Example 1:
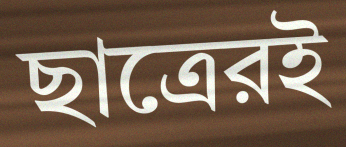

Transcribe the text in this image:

ছাত্রেরই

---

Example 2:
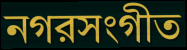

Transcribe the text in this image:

নগরসংগীত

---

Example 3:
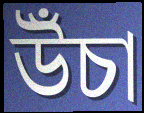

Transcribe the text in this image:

উঁচা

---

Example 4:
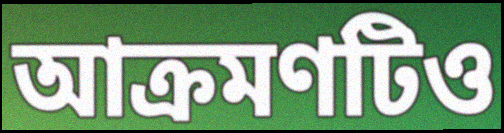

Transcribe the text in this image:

আক্রমণটিও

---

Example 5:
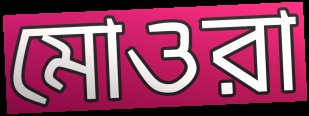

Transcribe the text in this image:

মোওরা